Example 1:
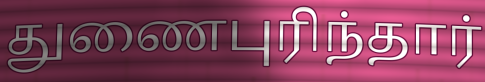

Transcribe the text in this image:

துணைபுரிந்தார்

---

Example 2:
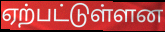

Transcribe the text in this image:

ஏற்பட்டுள்ளன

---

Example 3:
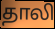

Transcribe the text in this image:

தாலி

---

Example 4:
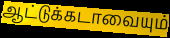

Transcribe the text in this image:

ஆட்டுக்கடாவையும்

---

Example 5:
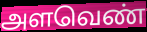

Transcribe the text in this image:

அளவெண்